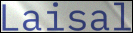
Laisal